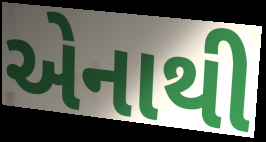
એનાથી